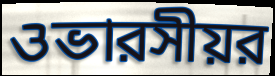
ওভারসীয়র